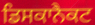
ਡਿਸਕਾਨੈਕਟ